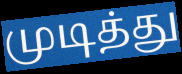
முடித்து